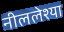
नीललेश्या